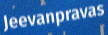
Jeevanpravas